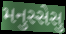
મનુસ્સેસુ